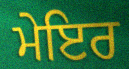
ਮੇਇਰ